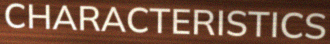
CHARACTERISTICS